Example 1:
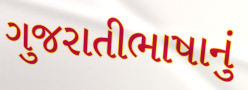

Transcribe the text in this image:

ગુજરાતીભાષાનું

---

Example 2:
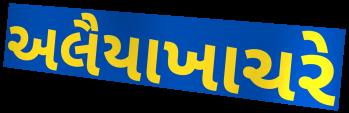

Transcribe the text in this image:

અલૈયાખાચરે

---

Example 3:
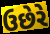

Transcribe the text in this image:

ઉછેરે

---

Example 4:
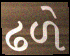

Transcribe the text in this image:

ઢળે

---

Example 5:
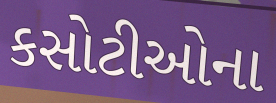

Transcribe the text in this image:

કસોટીઓના